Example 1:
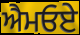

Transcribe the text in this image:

ਐਮਓਏ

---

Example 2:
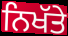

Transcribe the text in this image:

ਨਿਖੱਤੇ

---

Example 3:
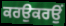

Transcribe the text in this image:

ਕਰਉਕਰਉਂ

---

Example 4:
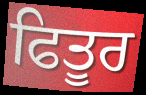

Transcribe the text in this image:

ਫਿਤੂਰ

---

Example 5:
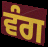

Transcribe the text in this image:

ਵੰਗ